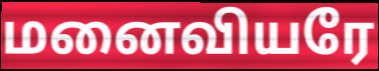
மனைவியரே